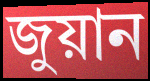
জুয়ান